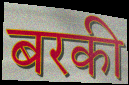
बरकी